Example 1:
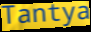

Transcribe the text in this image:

Tantya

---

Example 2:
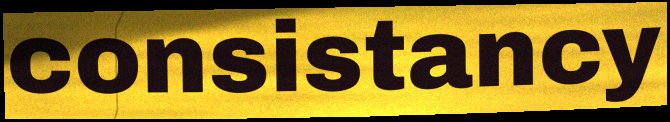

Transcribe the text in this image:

consistancy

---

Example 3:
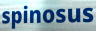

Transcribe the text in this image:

spinosus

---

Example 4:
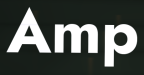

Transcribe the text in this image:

Amp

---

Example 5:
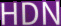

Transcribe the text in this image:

HDN